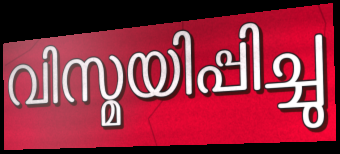
വിസ്മയിപ്പിച്ചു